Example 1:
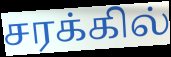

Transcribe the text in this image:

சரக்கில்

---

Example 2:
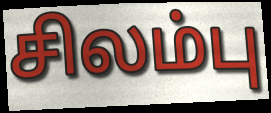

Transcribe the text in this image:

சிலம்பு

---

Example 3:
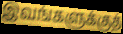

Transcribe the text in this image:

இவங்களுக்குத்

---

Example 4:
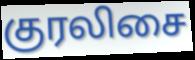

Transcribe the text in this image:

குரலிசை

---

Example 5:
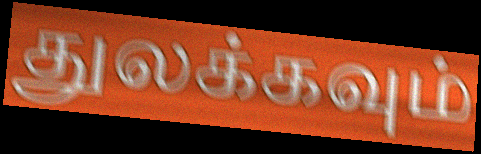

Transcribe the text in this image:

துலக்கவும்